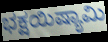
ಭಕ್ಷಯಿಷ್ಯಾಮಿ